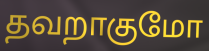
தவறாகுமோ